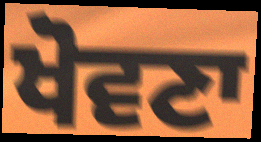
ਖੋਵਣਾ